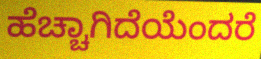
ಹೆಚ್ಚಾಗಿದೆಯೆಂದರೆ